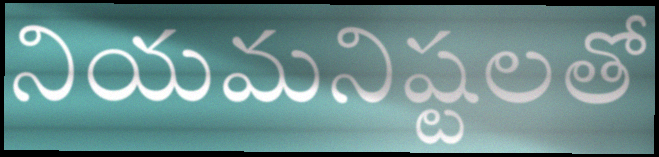
నియమనిష్టలతో